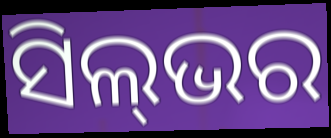
ସିଲ୍‌ଭର